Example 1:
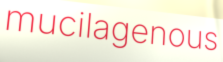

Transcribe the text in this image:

mucilagenous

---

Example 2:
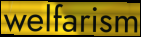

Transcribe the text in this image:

welfarism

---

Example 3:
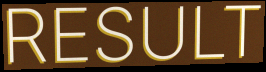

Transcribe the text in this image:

RESULT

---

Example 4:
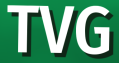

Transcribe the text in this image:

TVG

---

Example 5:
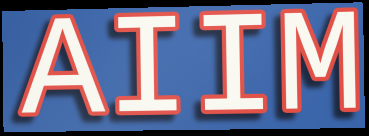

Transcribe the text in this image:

AIIM